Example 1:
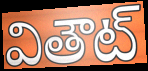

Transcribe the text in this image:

వితౌట్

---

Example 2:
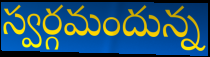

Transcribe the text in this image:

స్వర్గమందున్న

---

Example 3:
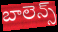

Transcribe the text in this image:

బాలెన్స్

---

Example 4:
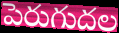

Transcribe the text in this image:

పెరుగుదల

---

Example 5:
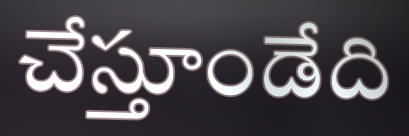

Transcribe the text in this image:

చేస్తూండేది